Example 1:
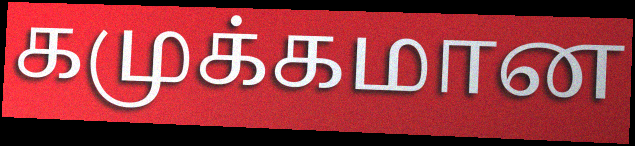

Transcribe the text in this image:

கமுக்கமான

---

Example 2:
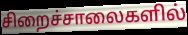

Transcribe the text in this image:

சிறைச்சாலைகளில்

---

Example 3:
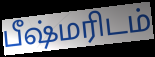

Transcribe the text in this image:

பீஷ்மரிடம்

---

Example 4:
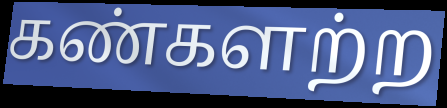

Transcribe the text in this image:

கண்களற்ற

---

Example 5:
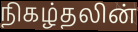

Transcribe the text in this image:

நிகழ்தலின்